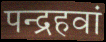
पन्द्रहवां